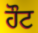
ਹੌਟ